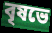
বৃষভে